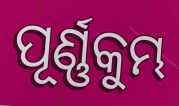
ପୂର୍ଣ୍ଣକୁମ୍ଭ